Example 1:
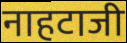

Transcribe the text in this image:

नाहटाजी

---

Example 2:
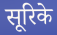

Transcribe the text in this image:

सूरिके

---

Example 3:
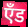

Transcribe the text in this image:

एँड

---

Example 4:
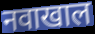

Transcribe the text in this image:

नवाखाल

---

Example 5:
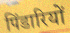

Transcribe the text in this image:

पिंडारियों